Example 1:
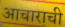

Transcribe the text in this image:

आचाराची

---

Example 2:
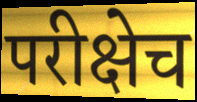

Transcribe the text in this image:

परीक्षेच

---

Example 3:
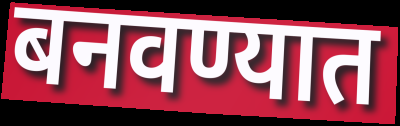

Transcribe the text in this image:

बनवण्यात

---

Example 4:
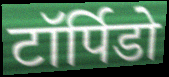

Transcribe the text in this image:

टॉर्पिडो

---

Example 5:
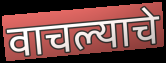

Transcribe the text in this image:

वाचल्याचे